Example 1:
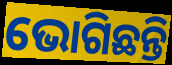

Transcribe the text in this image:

ଭୋଗିଛନ୍ତି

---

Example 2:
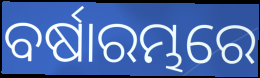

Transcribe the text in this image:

ବର୍ଷାରମ୍ଭରେ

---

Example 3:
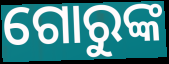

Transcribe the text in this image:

ଗୋରୁଙ୍କ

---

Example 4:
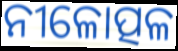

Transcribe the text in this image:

ନୀଳୋତ୍ପଳ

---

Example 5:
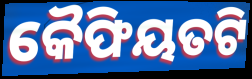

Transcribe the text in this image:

କୈଫିୟତଟି